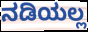
ನಡಿಯಲ್ಲ